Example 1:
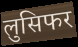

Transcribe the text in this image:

लुसिफर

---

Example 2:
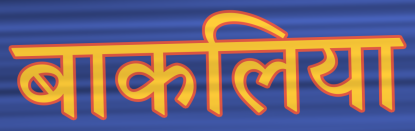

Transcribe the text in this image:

बाकलिया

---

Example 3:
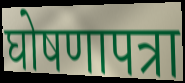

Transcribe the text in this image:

घोषणापत्रा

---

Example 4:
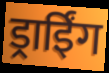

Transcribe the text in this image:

ड्राईिंग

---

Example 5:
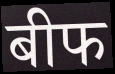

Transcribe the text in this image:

बीफ